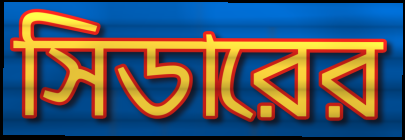
সিডারের